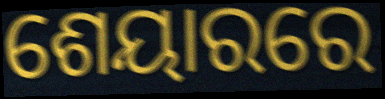
ଶେୟାରରେ